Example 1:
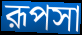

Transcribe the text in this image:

রূপসা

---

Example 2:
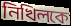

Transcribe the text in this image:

নিখিলকে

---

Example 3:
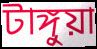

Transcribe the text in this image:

টাঙ্গুয়া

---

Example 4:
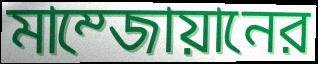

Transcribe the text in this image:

মাম্জোয়ানের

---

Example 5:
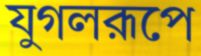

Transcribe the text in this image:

যুগলরূপে